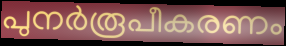
പുനർരൂപീകരണം